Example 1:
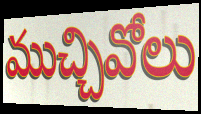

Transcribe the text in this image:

ముచ్చివోలు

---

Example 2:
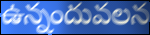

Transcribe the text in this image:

ఉన్నందువలన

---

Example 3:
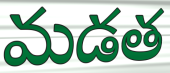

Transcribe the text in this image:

మడత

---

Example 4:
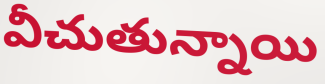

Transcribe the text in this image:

వీచుతున్నాయి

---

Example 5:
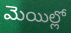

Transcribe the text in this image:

మెయిల్లో